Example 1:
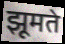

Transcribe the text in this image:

झूमते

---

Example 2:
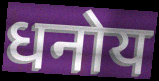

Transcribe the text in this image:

धनोय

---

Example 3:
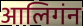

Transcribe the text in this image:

आलिगंन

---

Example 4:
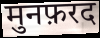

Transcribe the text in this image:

मुनफ़रद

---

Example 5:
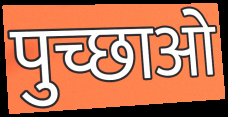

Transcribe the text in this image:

पुच्छाओ